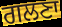
ਗਲਣਾ